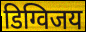
डिग्विजय